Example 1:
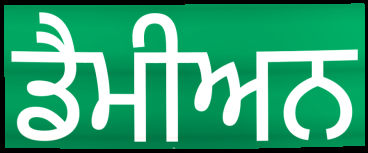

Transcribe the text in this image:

ਡੈਮੀਅਨ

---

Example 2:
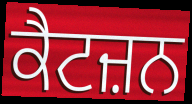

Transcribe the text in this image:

ਕੈਟਜ਼ਨ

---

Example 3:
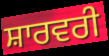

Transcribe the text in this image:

ਸ਼ਾਰਵਰੀ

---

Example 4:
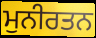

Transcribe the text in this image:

ਮੁਨੀਰਤਨ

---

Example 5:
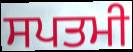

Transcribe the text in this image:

ਸਪਤਮੀ